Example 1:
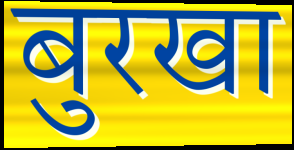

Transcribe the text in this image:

बुरखा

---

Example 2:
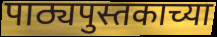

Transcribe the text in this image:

पाठ्यपुस्तकाच्या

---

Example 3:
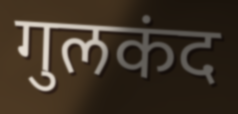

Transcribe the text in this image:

गुलकंद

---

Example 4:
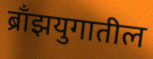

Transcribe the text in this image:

ब्राँझयुगातील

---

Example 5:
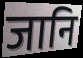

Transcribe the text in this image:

जानि